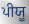
ਪੀਯੂ